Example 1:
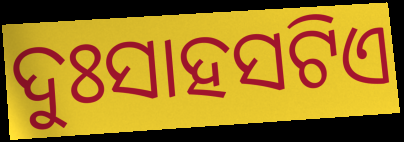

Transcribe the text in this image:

ଦୁଃସାହସଟିଏ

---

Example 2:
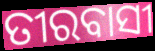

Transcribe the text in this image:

ତୀରବାସୀ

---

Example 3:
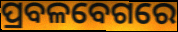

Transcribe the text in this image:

ପ୍ରବଳବେଗରେ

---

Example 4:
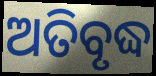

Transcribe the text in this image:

ଅତିବୃଦ୍ଧ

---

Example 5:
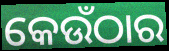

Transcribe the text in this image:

କେଉଁଠାର